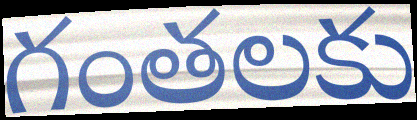
గంతలకు